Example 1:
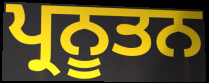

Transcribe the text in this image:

ਪ੍ਰਨੂਤਨ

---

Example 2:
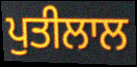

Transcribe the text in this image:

ਪੁਤੀਲਾਲ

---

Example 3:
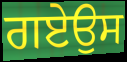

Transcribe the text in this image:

ਗਏਉਸ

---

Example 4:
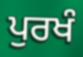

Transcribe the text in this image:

ਪੁਰਖੰ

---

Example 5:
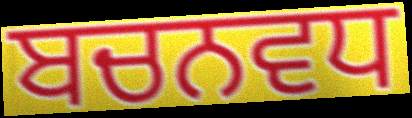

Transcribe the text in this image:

ਬਚਨਵਧ